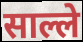
साल्ले